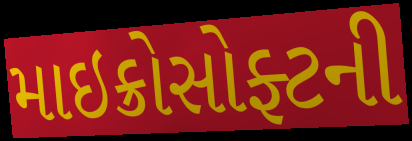
માઇક્રોસોફ્ટની